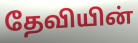
தேவியின்